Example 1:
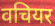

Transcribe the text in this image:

वचियर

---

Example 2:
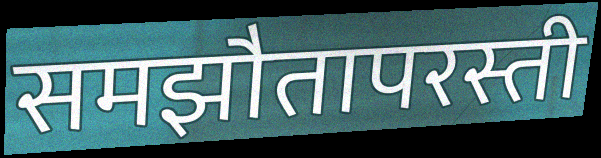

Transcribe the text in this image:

समझौतापरस्ती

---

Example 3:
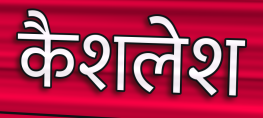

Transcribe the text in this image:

कैशलेश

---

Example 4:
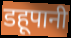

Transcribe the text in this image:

डहूपानी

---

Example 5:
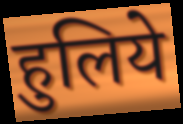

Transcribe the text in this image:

हुलिये